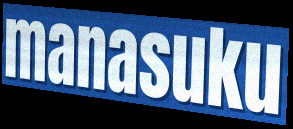
manasuku